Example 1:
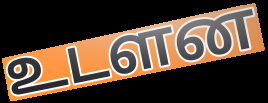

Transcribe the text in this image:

உடளன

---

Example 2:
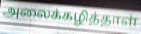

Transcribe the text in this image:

அலைக்கழித்தாள்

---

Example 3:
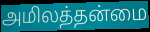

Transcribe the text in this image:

அமிலத்தன்மை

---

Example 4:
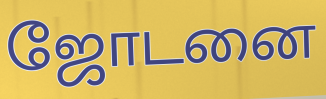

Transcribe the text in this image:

ஜோடனை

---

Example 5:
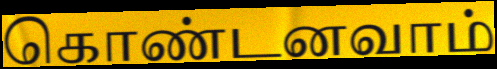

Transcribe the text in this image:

கொண்டனவாம்